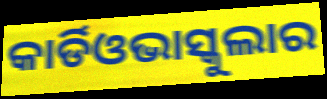
କାର୍ଡିଓଭାସ୍କୁଲାର